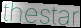
thestar